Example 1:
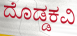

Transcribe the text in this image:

ದೊಡ್ಡಕವಿ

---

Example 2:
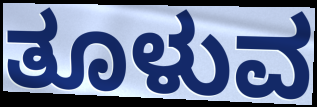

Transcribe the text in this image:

ತೂಳುವ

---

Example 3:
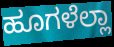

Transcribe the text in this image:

ಹೂಗಳೆಲ್ಲಾ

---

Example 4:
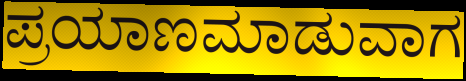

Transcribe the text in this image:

ಪ್ರಯಾಣಮಾಡುವಾಗ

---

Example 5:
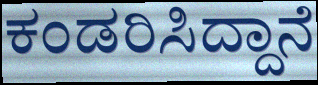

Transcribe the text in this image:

ಕಂಡರಿಸಿದ್ದಾನೆ